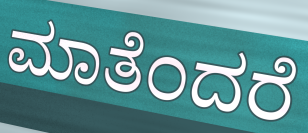
ಮಾತೆಂದರೆ